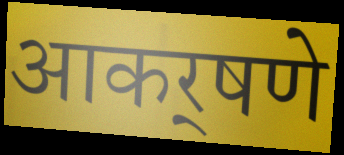
आकर्षणे